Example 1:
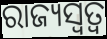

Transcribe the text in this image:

ରାଜ୍ୟସ୍ଵତ୍ଵ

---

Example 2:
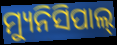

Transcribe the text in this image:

ମ୍ୟୁନିସିପାଲ୍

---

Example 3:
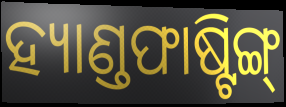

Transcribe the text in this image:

ହ୍ୟାଣ୍ଡଫାଷ୍ଟିଙ୍ଗ୍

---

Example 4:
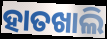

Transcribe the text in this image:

ହାତଖାଲି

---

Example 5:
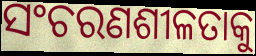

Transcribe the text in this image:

ସଂଚରଣଶୀଳତାକୁ